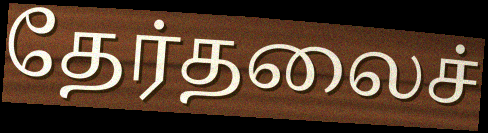
தேர்தலைச்